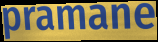
pramane